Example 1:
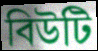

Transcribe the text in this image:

বিউটি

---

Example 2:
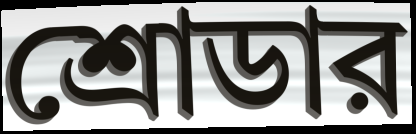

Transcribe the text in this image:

শ্রোডার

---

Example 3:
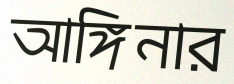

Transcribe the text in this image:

আঙ্গিনার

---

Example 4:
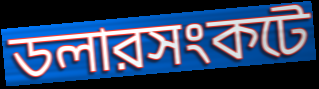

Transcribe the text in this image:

ডলারসংকটে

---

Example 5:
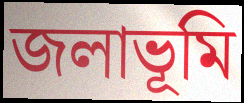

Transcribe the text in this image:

জলাভূমি